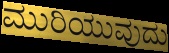
ಮುರಿಯುವುದು